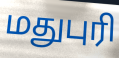
மதுபுரி